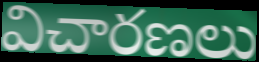
విచారణలు